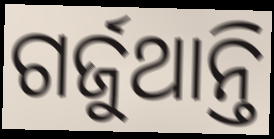
ଗର୍ଜୁଥାନ୍ତି